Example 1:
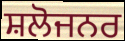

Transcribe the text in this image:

ਸ਼ਲੋਜਨਰ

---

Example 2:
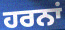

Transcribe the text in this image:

ਹਰਨਾਂ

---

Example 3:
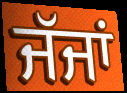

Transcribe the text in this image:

ਜੱਜਾਂ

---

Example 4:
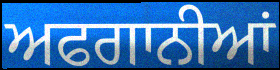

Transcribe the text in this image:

ਅਫਗਾਨੀਆਂ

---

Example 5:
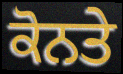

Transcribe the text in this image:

ਕੋਨਤੇ